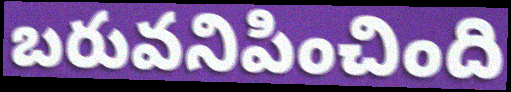
బరువనిపించింది